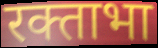
रक्ताभा